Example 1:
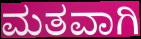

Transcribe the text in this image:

ಮತವಾಗಿ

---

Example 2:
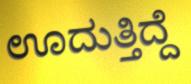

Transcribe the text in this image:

ಊದುತ್ತಿದ್ದೆ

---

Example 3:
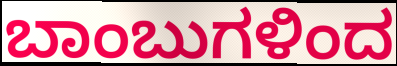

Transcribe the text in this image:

ಬಾಂಬುಗಳಿಂದ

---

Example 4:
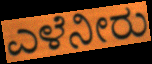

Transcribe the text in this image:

ಎಳೆನೀರು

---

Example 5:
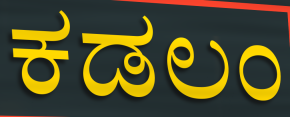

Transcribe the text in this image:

ಕಡಲಂ